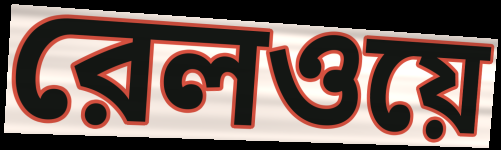
রেলওয়ে